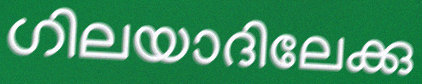
ഗിലയാദിലേക്കു